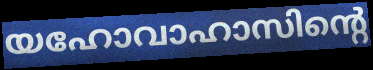
യഹോവാഹാസിന്റെ